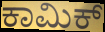
ಕಾಮಿಕ್